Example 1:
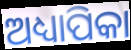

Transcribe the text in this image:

ଅଧ୍ୟାପିକା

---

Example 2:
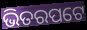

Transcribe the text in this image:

ଭିତରପଟେ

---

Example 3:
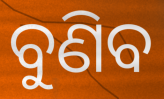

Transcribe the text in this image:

ବୁଣିବ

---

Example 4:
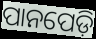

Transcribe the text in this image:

ପାନପେଡ଼ି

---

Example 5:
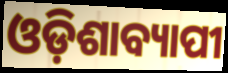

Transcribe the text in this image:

ଓଡ଼ିଶାବ୍ୟାପୀ